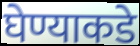
घेण्याकडे